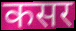
कसर